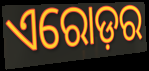
ଏରୋଡ଼ର